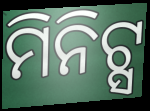
ମିନିଟ୍ସ